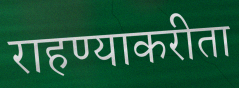
राहण्याकरीता